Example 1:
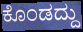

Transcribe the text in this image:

ಕೊಂಡದ್ದು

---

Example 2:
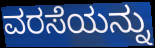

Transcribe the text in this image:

ವರಸೆಯನ್ನು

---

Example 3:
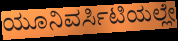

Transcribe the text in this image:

ಯೂನಿವರ್ಸಿಟಿಯಲ್ಲೇ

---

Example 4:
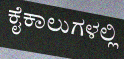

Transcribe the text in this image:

ಕೈಕಾಲುಗಳಲ್ಲಿ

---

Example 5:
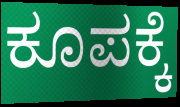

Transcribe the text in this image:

ಕೂಪಕ್ಕೆ